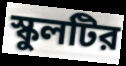
স্কুলটির